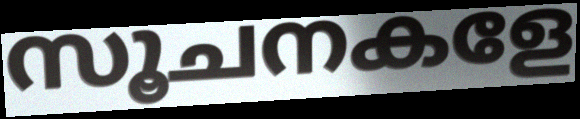
സൂചനകളേ